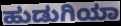
ಹುಡುಗಿಯಾ